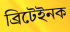
ব্ৰিটেইনক